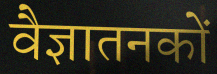
वैज्ञातनकों